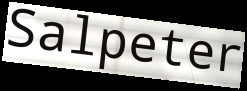
Salpeter